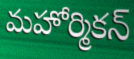
మహోర్మికన్